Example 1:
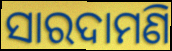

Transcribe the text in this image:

ସାରଦାମଣି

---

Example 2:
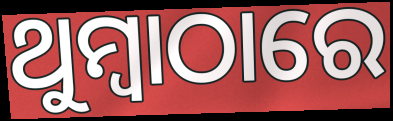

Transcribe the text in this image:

ଥୁମ୍ବାଠାରେ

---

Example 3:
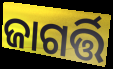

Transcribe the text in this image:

ଜାଗର୍ତ୍ତି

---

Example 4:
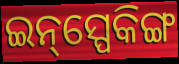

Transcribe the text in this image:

ଇନ୍‌ସ୍ପେକିଙ୍ଗ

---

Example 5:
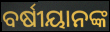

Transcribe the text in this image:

ବର୍ଷୀୟାନଙ୍କ